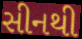
સીનથી